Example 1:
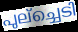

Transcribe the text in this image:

പുല്ച്ചെടി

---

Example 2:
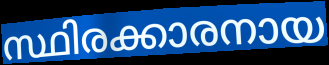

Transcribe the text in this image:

സ്ഥിരക്കാരനായ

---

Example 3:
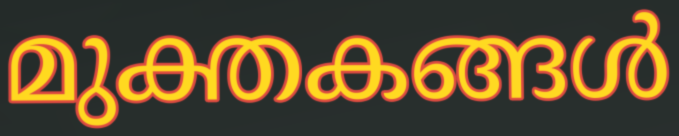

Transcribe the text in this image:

മുക്തകങ്ങൾ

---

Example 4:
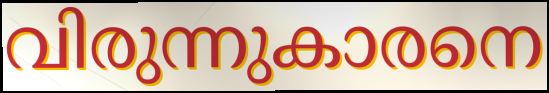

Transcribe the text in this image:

വിരുന്നുകാരനെ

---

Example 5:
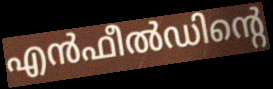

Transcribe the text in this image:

എൻഫീൽഡിന്റെ